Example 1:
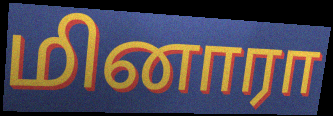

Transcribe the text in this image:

மினாரா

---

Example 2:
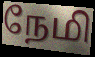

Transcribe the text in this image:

நேமி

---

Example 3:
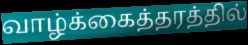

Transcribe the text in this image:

வாழ்க்கைத்தரத்தில்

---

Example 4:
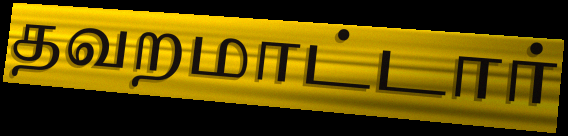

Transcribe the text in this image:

தவறமாட்டார்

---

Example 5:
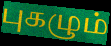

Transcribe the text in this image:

புகழும்